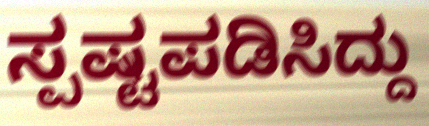
ಸ್ಪಷ್ಟಪಡಿಸಿದ್ದು